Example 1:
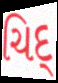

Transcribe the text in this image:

ચિદ્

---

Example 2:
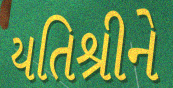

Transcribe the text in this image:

યતિશ્રીને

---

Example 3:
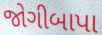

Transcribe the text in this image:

જોગીબાપા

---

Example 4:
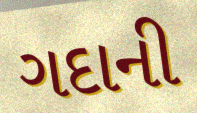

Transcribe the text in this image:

ગદાની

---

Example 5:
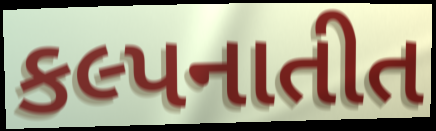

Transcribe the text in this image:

કલ્પનાતીત